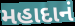
મહાદાનં